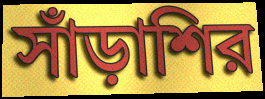
সাঁড়াশির